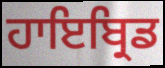
ਹਾਇਬ੍ਰਿਡ